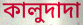
কালুদাদা